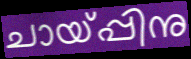
ചായ്പ്പിനു